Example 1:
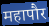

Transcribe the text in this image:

महापौर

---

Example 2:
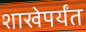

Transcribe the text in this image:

शाखेपर्यंत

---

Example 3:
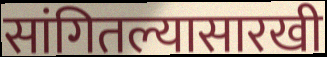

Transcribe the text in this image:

सांगितल्यासारखी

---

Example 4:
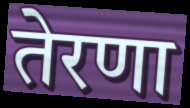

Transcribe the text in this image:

तेरणा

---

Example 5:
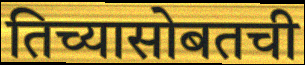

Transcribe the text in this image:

तिच्यासोबतची